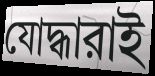
যোদ্ধারাই